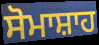
ਸੋਮਾਸ਼ਾਹ